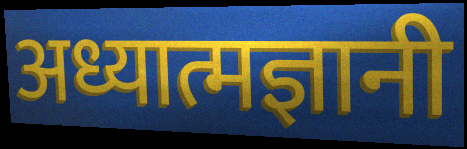
अध्यात्मज्ञानी